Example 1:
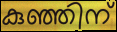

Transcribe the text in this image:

കുഞ്ഞിന്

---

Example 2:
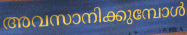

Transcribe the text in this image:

അവസാനിക്കുമ്പോൾ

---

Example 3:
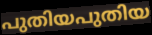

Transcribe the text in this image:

പുതിയപുതിയ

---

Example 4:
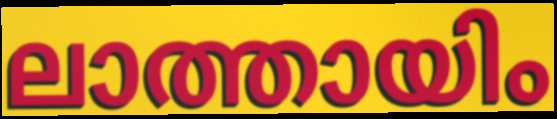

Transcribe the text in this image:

ലാത്തായിം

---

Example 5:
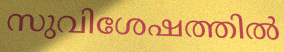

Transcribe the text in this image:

സുവിശേഷത്തിൽ